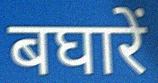
बघारें